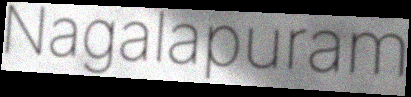
Nagalapuram